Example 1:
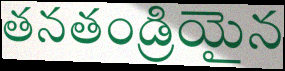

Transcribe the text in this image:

తనతండ్రియైన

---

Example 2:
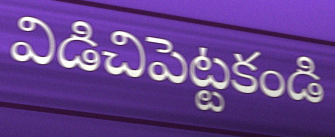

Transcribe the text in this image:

విడిచిపెట్టకండి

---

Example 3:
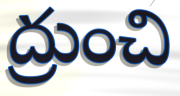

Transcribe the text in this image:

ద్రుంచి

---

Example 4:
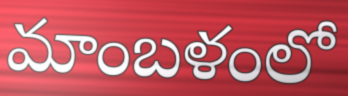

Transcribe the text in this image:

మాంబళంలో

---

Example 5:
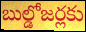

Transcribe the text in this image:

బుల్డోజర్లకు